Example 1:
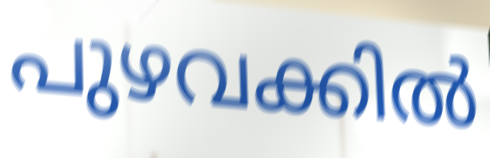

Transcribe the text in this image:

പുഴവക്കിൽ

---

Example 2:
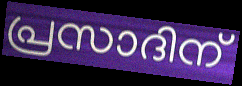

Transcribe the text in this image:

പ്രസാദിന്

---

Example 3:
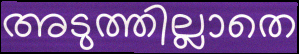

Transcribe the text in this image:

അടുത്തില്ലാതെ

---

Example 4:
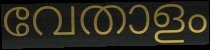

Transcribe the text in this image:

വേതാളം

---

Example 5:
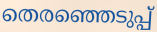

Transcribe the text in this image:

തെരഞ്ഞെടുപ്പ്